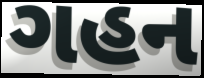
ગહન